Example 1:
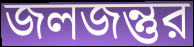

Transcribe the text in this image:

জলজন্তুর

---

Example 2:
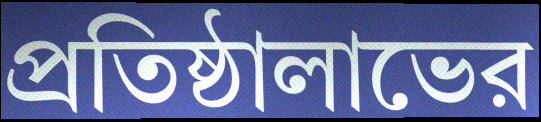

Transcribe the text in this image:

প্রতিষ্ঠালাভের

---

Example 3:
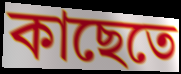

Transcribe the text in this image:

কাছেতে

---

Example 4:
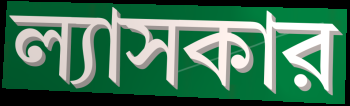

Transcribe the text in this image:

ল্যাসকার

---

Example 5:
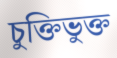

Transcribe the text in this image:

চুক্তিভুক্ত